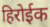
हिरोईक